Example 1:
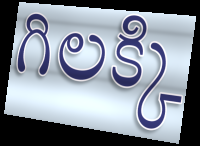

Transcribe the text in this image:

గిలక్కి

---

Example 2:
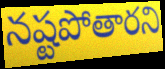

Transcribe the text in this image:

నష్టపోతారని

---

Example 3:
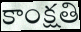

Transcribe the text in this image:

కాంక్షతి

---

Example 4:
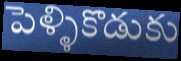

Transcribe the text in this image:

పెళ్ళికొడుకు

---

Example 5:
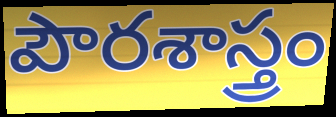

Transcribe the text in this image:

పౌరశాస్త్రం